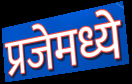
प्रजेमध्ये